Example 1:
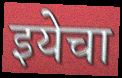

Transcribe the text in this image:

इयेचा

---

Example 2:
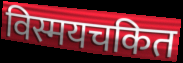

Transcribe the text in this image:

विस्मयचकित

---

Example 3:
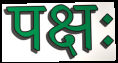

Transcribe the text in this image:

पक्षः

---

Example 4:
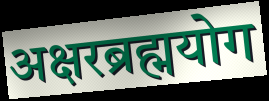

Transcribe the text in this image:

अक्षरब्रह्मयोग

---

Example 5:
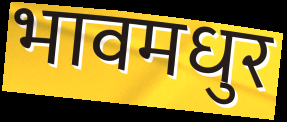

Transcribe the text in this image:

भावमधुर